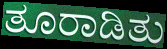
ತೂರಾಡಿತು